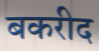
बकरीद